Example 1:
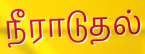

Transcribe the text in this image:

நீராடுதல்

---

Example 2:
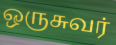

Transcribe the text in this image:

ஒருசுவர்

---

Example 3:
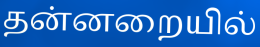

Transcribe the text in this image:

தன்னறையில்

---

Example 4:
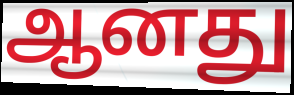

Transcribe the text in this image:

ஆனது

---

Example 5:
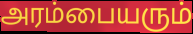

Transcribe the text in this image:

அரம்பையரும்